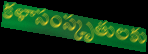
కళాసంస్కృతులకు